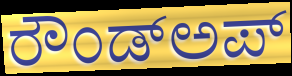
ರೌಂಡ್ಅಪ್